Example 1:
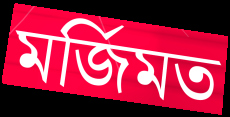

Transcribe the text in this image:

মর্জিমত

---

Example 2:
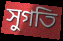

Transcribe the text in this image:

সুগতি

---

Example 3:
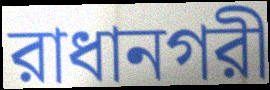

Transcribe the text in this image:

রাধানগরী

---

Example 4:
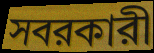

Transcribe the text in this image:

সবরকারী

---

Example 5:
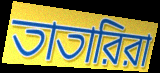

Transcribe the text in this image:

তাতারিরা